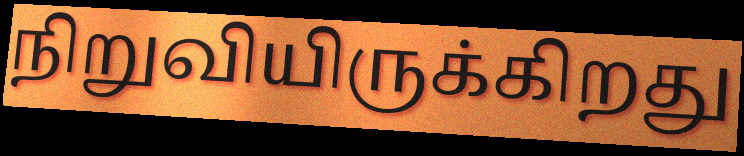
நிறுவியிருக்கிறது